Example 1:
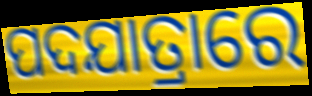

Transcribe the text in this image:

ପଦଯାତ୍ରାରେ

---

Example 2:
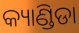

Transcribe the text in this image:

କ୍ୟାଣ୍ଡିଡା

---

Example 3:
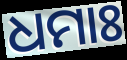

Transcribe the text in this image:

ଧମାଃ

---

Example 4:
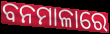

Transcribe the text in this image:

ବନମାଳାରେ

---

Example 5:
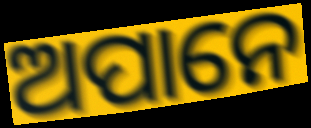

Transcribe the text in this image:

ଅପାନେ